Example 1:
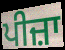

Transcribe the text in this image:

ਪੀਜ਼ਾ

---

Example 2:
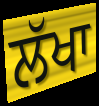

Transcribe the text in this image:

ਲੱਖਾ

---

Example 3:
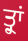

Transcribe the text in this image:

ਤ੍ਰ੍ਹਾਂ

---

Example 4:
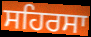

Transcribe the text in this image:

ਸਹਿਰਸਾ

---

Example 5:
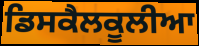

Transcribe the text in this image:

ਡਿਸਕੈਲਕੂਲੀਆ